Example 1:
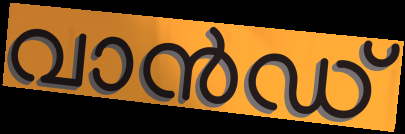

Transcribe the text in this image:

വാൻഡ്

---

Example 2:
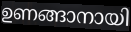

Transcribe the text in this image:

ഉണങ്ങാനായി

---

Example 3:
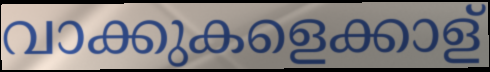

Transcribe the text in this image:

വാക്കുകളെക്കാള്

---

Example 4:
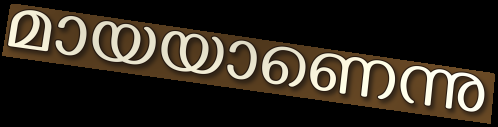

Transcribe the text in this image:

മായയാണെന്നു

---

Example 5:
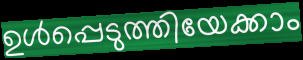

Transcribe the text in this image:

ഉൾപ്പെടുത്തിയേക്കാം